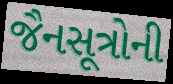
જૈનસૂત્રોની